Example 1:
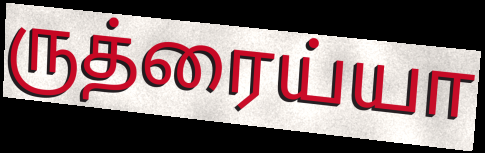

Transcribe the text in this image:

ருத்ரைய்யா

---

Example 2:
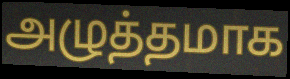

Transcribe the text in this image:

அழுத்தமாக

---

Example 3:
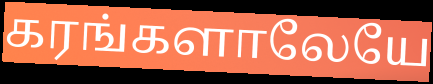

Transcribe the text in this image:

கரங்களாலேயே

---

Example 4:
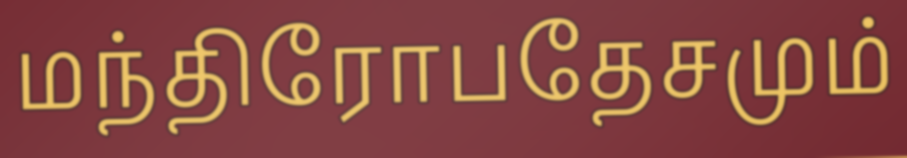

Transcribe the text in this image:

மந்திரோபதேசமும்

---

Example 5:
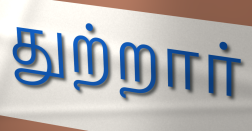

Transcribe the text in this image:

துற்றார்